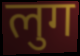
लुग